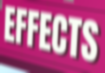
EFFECTS